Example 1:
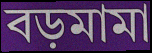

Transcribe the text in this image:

বড়মামা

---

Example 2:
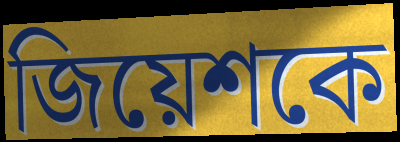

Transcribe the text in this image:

জিয়েশকে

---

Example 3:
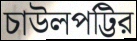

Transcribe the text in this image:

চাউলপট্টির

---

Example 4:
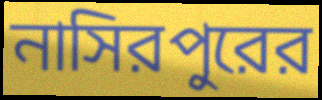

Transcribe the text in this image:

নাসিরপুরের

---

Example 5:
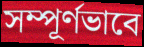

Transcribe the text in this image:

সম্পূর্ণভাবে